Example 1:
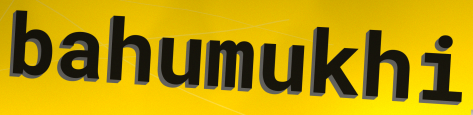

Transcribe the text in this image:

bahumukhi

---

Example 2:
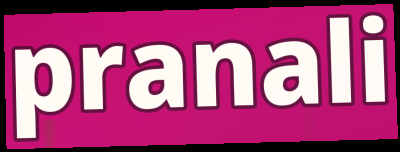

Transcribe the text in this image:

pranali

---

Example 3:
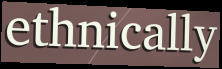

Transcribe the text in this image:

ethnically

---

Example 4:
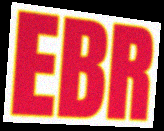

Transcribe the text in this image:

EBR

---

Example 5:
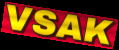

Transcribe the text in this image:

VSAK